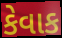
કેવાક